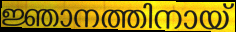
ജ്ഞാനത്തിനായ്